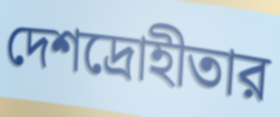
দেশদ্রোহীতার